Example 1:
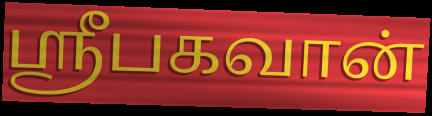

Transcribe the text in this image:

ஸ்ரீபகவான்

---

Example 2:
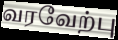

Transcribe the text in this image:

வரவேற்பு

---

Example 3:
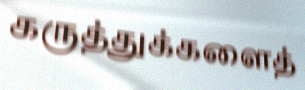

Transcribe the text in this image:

கருத்துக்களைத்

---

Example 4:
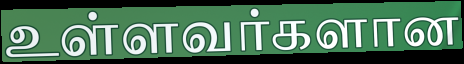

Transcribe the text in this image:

உள்ளவர்களான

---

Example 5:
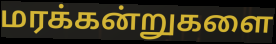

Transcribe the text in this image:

மரக்கன்றுகளை